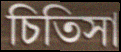
চিতিসা